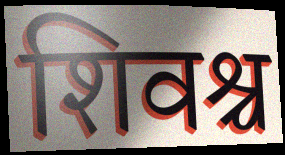
शिवश्च